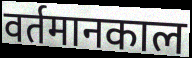
वर्तमानकाल